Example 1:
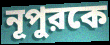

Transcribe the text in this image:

নূপুরকে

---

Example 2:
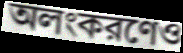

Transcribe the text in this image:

অলংকরণেও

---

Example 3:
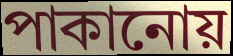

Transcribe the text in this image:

পাকানোয়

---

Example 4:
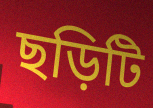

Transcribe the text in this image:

ছড়িটি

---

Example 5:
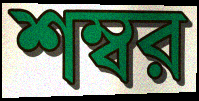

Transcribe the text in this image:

শম্বর